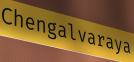
Chengalvaraya